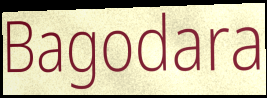
Bagodara